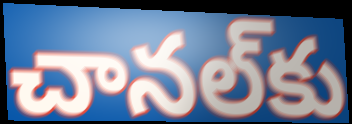
చానల్‌కు